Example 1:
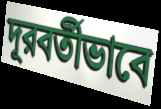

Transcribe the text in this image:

দূরবর্তীভাবে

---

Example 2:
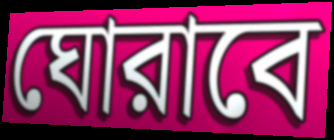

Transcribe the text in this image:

ঘোরাবে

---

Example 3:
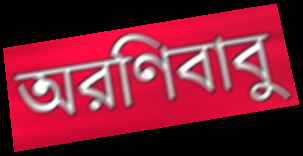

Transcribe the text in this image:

অরণিবাবু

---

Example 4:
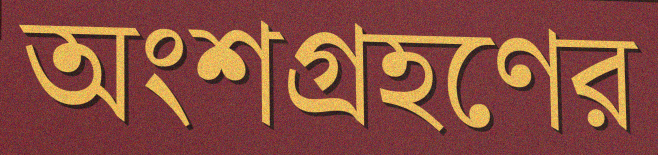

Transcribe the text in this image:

অংশগ্রহণের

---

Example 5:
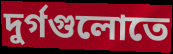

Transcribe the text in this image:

দুর্গগুলোতে